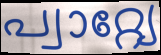
പ്വാറ്റ്യേ